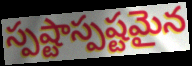
స్పష్టాస్పష్టమైన